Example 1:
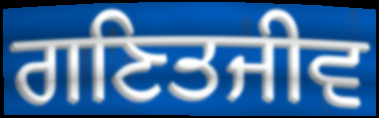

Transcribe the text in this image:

ਗਣਿਤਜੀਵ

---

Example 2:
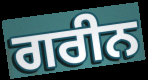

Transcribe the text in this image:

ਗਰੀਨ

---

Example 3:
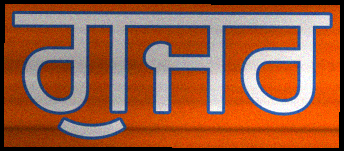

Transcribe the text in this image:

ਗੁਜਰ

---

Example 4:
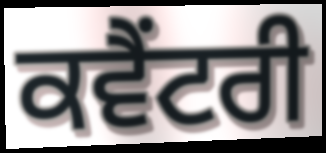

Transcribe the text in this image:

ਕਵੈਂਟਰੀ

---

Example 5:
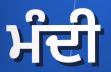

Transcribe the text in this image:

ਮੰਦੀ